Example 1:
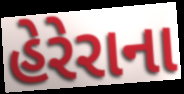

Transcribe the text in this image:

હેરેરાના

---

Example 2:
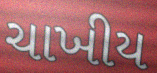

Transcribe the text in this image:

ચાખીય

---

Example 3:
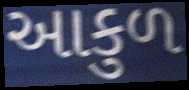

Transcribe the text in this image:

આકુળ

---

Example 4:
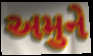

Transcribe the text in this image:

અમુને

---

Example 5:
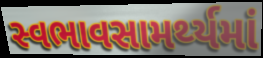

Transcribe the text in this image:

સ્વભાવસામર્થ્યમાં